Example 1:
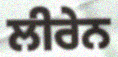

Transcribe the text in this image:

ਲੀਰੇਨ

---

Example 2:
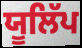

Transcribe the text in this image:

ਯੂਲਿੱਪ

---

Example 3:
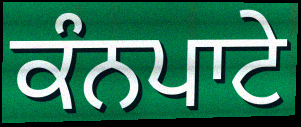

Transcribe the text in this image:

ਕੰਨਪਾਟੇ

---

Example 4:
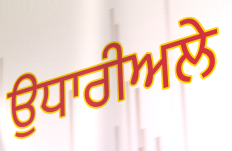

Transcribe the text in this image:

ਉਧਾਰੀਅਲੇ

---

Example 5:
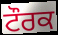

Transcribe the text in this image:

ਟੌਰਕ